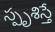
స్పృశిస్తే